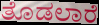
ತೊಡಲಾರೆ